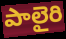
పాలైరి